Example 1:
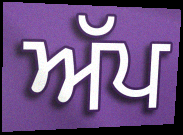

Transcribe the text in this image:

ਅੱਪ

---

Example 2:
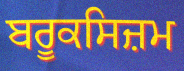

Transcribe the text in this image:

ਬਰੂਕਸਿਜ਼ਮ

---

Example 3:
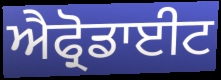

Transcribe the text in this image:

ਐਫ੍ਰੋਡਾਈਟ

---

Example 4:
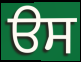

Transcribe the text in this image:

ੳਸ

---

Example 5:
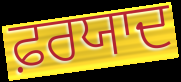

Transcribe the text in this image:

ਫ਼ਰਯਾਦ